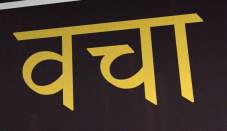
वचा